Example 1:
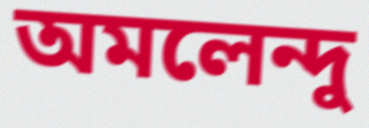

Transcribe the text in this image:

অমলেন্দু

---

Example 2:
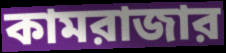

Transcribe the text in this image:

কামরাজার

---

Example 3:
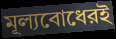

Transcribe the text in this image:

মূল্যবোধেরই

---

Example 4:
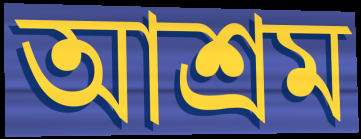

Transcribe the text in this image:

আশ্রম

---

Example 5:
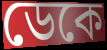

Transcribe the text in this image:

ডেকে